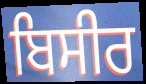
ਬਿਸੀਰ